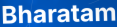
Bharatam